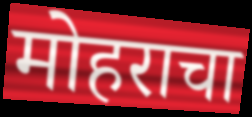
मोहराचा